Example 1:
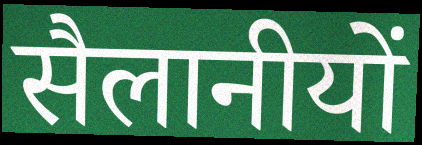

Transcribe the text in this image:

सैलानीयों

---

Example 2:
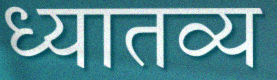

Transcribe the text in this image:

ध्यातव्य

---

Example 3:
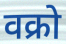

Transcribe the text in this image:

वक्रो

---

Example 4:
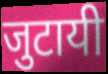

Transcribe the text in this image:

जुटायी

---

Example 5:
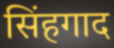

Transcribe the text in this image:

सिंहगाद